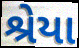
શ્રેયા